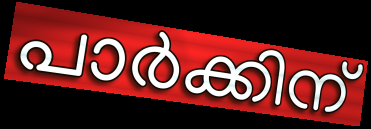
പാർക്കിന്